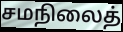
சமநிலைத்